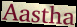
Aastha